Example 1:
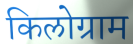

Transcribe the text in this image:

किलोग्राम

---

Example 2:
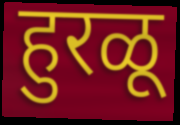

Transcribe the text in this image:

हुरळू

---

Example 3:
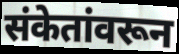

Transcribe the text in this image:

संकेतांवरून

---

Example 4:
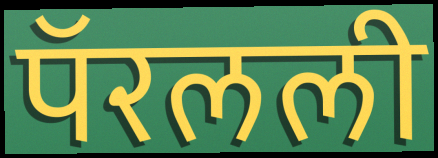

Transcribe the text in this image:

पॅरलली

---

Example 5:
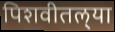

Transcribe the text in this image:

पिशवीतल्या